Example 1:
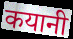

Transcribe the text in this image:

कयानी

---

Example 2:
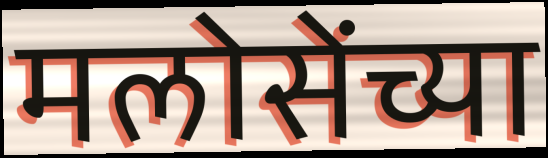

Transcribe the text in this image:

मलोसेंच्या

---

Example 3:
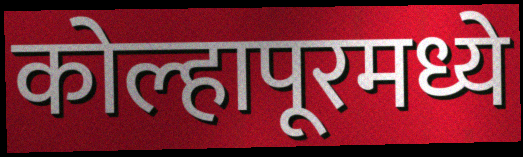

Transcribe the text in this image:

कोल्हापूरमध्ये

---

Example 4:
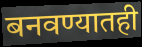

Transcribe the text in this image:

बनवण्यातही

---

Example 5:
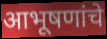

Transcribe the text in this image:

आभूषणांचे